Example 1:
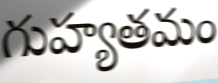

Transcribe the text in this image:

గుహ్యతమం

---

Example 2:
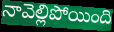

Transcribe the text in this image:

నావెల్లిపోయింది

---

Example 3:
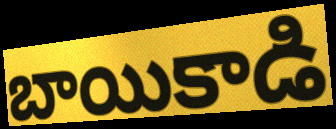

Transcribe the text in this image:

బాయికాడి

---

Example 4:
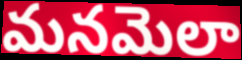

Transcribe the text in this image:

మనమెలా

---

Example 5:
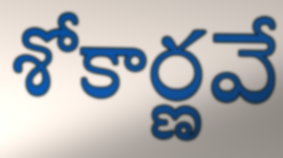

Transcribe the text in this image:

శోకార్ణవే